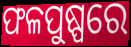
ଫଳପୁଷ୍ପରେ